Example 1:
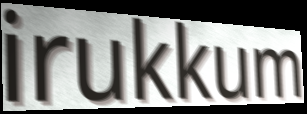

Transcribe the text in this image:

irukkum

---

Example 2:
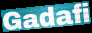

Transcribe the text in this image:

Gadafi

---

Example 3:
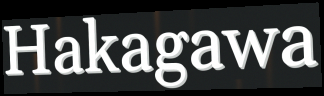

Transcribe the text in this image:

Hakagawa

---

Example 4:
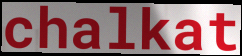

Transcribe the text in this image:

chalkat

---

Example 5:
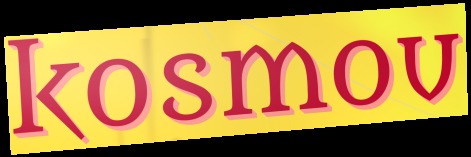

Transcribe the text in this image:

kosmou